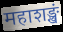
महाशङ्खं